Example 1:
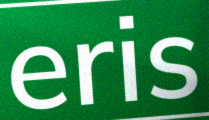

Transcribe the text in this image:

eris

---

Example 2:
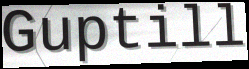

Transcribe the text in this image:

Guptill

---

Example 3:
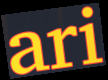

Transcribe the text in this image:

ari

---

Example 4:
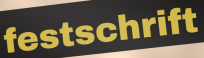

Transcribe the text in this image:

festschrift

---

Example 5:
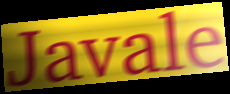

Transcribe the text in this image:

Javale